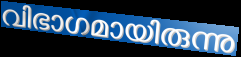
വിഭാഗമായിരുന്നു